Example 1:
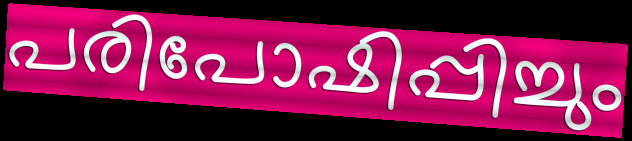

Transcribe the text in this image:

പരിപോഷിപ്പിച്ചും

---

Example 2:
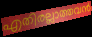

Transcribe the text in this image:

എതിരല്ലാത്തവൻ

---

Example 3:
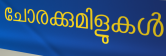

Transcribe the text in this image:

ചോരക്കുമിളുകൾ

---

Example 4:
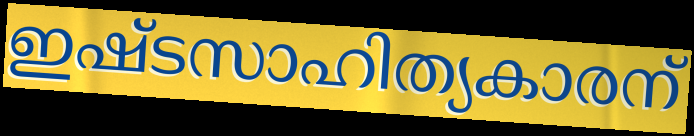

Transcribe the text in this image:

ഇഷ്ടസാഹിത്യകാരന്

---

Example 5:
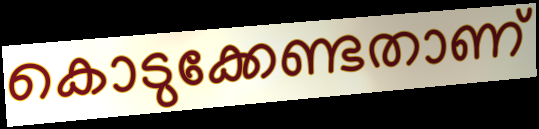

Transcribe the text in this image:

കൊടുക്കേണ്ടതാണ്